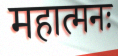
महात्मनः